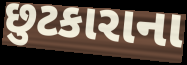
છુટકારાના